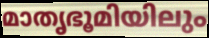
മാതൃഭൂമിയിലും